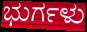
ಭುರ್ಗಳು